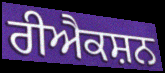
ਰੀਐਕਸ਼ਨ